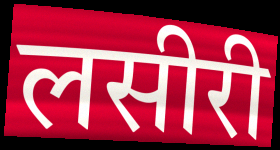
लसीरी